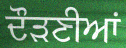
ਦੌੜਣੀਆਂ